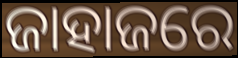
ଜାହାଜରେ